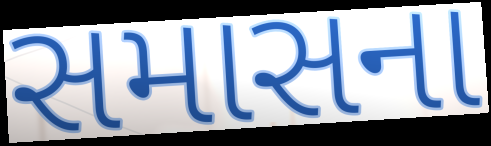
સમાસના